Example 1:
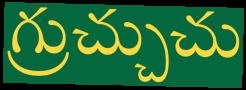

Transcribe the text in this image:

గ్రుచ్చుచు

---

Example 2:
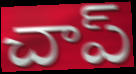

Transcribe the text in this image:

చాప్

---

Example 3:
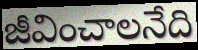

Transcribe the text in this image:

జీవించాలనేది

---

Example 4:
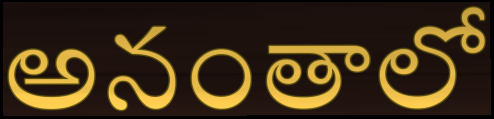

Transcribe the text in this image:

అనంతాలో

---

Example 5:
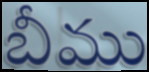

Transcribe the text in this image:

బీము